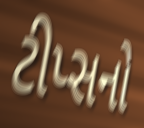
ટીપ્સનો